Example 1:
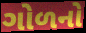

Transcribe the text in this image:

ગોળનો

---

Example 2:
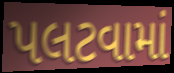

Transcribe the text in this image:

પલટવામાં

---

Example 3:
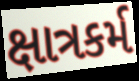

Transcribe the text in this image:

ક્ષાત્રકર્મ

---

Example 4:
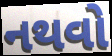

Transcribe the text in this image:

નથવો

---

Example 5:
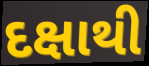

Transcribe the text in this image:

દક્ષાથી